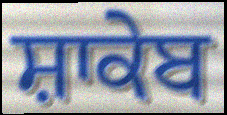
ਸ਼ਾਕੇਬ